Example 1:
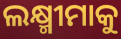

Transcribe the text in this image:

ଲକ୍ଷ୍ମୀମାକୁ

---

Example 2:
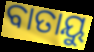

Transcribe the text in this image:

ବାତାୟୁ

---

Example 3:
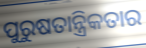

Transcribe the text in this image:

ପୁରୁଷତାନ୍ତ୍ରିକତାର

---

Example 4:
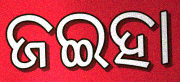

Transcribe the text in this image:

ଜଇହା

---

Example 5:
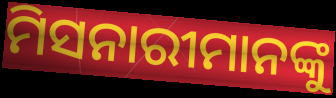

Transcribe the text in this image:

ମିସନାରୀମାନଙ୍କୁ